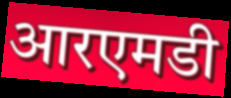
आरएमडी